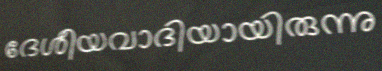
ദേശീയവാദിയായിരുന്നു